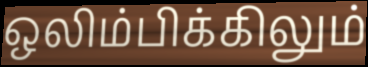
ஒலிம்பிக்கிலும்